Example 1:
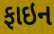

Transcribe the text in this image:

ફાઇન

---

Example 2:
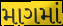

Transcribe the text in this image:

માગમાં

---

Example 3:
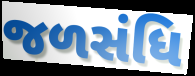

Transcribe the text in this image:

જળસંધિ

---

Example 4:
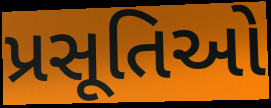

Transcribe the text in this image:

પ્રસૂતિઓ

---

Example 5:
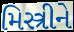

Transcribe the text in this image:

મિસ્ત્રીને